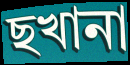
ছখানা